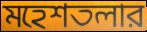
মহেশতলার